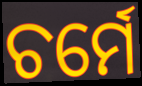
ଚର୍ମେ